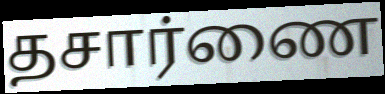
தசார்ணை